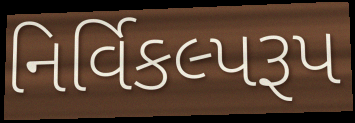
નિર્વિકલ્પરૂપ